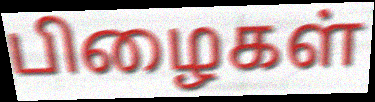
பிழைகள்